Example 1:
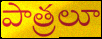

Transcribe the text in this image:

పాత్రలూ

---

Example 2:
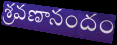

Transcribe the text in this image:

శ్రవణానందం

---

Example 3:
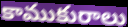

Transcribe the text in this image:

కాముకురాలు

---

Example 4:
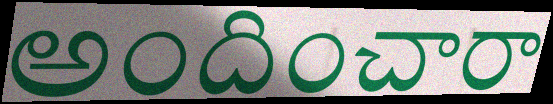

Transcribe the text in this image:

అందించారా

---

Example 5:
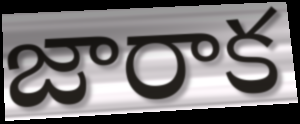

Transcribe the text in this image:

జారాక